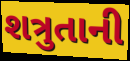
શત્રુતાની